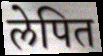
लेपित